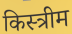
किस्त्रीम